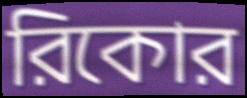
রিকোর